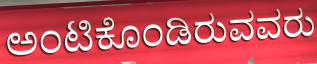
ಅಂಟಿಕೊಂಡಿರುವವರು